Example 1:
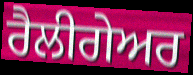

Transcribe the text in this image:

ਰੈਲੀਗੇਅਰ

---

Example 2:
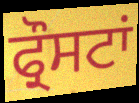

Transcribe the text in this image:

ਫ੍ਰੌਸਟਾਂ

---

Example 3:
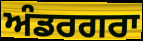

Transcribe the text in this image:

ਅੰਡਰਗਰਾ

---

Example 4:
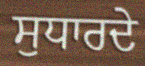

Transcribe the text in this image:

ਸੁਧਾਰਦੇ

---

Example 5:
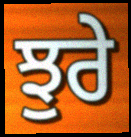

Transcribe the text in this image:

ਝੁਰੇ